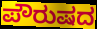
ಪೌರುಷದ